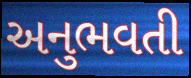
અનુભવતી